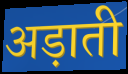
अड़ाती